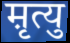
म़ृत्यु